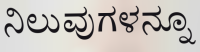
ನಿಲುವುಗಳನ್ನೂ